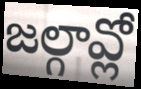
జల్గావ్లో